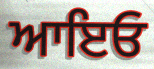
ਆਇਓ